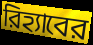
রিহ্যাবের